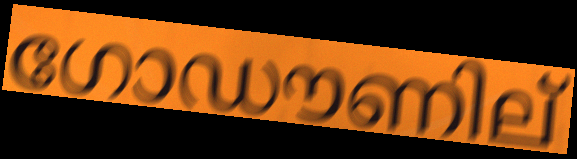
ഗോഡൗണില്